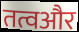
तत्वऔर